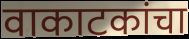
वाकाटकांचा